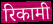
रिकामी